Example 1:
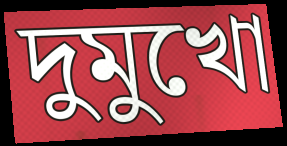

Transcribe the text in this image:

দুমুখো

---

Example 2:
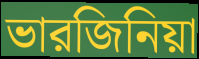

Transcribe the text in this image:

ভারজিনিয়া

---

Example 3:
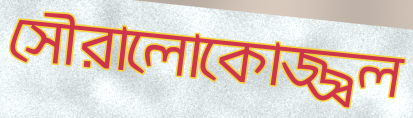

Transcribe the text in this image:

সৌরালোকোজ্জ্বল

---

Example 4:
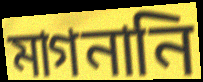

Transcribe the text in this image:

মাগনানি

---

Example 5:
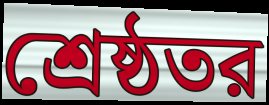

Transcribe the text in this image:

শ্রেষ্ঠতর